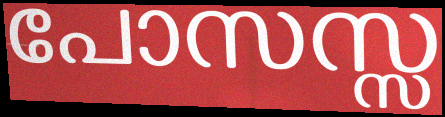
പോസസ്സ